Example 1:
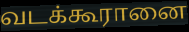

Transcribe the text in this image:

வடக்கூரானை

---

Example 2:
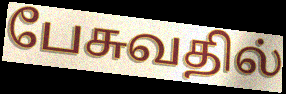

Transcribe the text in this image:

பேசுவதில்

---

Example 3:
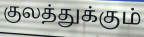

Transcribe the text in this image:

குலத்துக்கும்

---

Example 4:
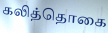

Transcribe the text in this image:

கலித்தொகை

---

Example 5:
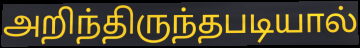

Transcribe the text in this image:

அறிந்திருந்தபடியால்